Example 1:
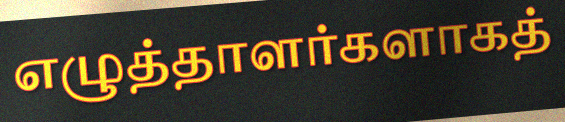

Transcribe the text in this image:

எழுத்தாளர்களாகத்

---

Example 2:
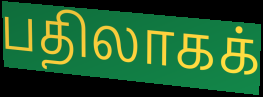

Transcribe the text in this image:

பதிலாகக்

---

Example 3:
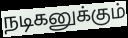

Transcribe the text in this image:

நடிகனுக்கும்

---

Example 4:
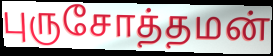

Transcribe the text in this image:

புருசோத்தமன்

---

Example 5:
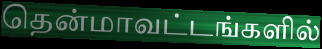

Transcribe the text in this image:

தென்மாவட்டங்களில்